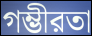
গম্ভীরতা